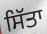
ਸਿੱਤਾ